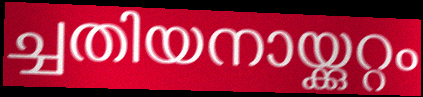
ച്ചതിയനായ്ക്കുറ്റം